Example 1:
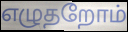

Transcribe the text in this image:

எழுதறோம்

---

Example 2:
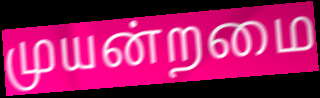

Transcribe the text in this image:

முயன்றமை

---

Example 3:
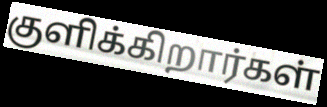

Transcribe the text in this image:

குளிக்கிறார்கள்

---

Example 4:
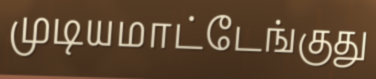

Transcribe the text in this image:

முடியமாட்டேங்குது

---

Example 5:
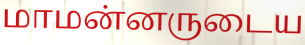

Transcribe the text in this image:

மாமன்னருடைய